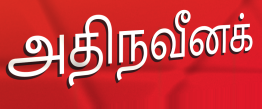
அதிநவீனக்